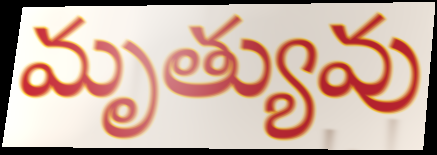
మృత్యువు